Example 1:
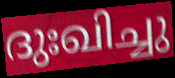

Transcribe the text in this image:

ദുഃഖിച്ചു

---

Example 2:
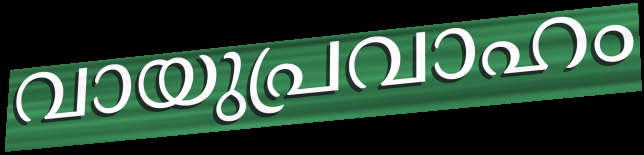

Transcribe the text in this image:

വായുപ്രവാഹം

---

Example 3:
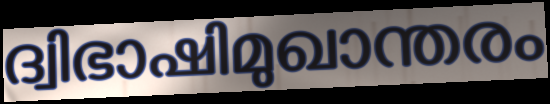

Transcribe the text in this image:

ദ്വിഭാഷിമുഖാന്തരം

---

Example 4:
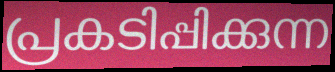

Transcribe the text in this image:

പ്രകടിപ്പിക്കുന്ന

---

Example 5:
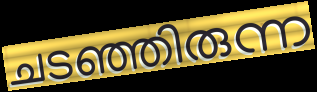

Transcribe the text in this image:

ചടഞ്ഞിരുന്ന